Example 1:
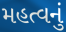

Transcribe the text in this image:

મહત્વનું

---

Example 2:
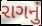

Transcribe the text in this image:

રાગનું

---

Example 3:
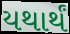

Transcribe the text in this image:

યથાર્થં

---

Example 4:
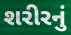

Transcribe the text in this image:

શરીરનું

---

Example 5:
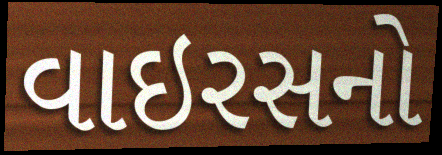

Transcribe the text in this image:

વાઇરસનો